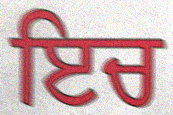
ਇਚ